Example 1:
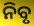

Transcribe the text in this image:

ନିବୃ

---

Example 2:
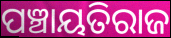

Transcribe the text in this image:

ପଞ୍ଚାୟତିରାଜ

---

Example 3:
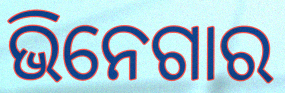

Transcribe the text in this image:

ଭିନେଗାର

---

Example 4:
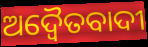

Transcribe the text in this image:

ଅଦ୍ୱୈତବାଦୀ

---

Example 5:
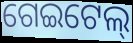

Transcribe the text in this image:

ଗେଇଟେଲ୍